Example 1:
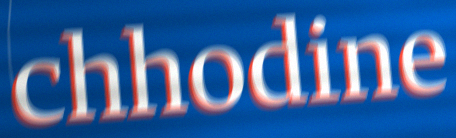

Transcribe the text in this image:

chhodine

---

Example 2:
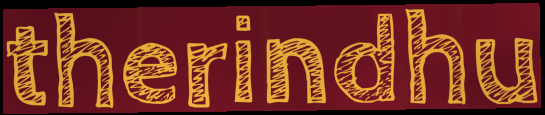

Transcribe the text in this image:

therindhu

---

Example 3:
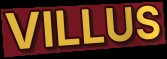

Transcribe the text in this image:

VILLUS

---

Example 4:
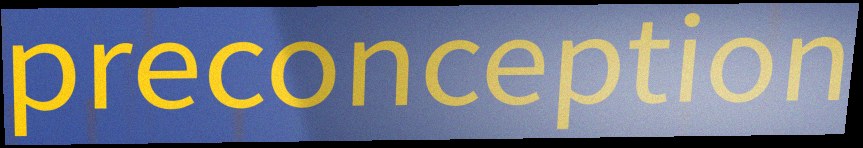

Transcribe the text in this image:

preconception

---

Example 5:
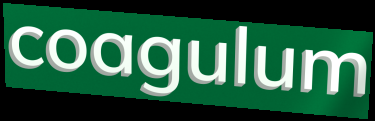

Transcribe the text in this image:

coagulum